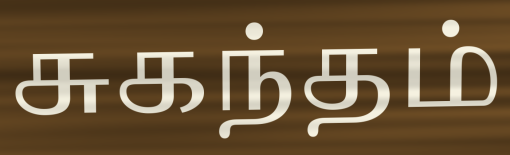
சுகந்தம்